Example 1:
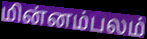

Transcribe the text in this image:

மின்னம்பலம்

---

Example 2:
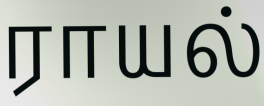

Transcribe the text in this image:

ராயல்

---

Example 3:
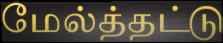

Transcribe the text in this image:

மேல்த்தட்டு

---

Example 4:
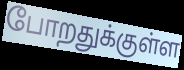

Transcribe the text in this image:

போறதுக்குள்ள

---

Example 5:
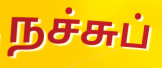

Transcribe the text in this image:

நச்சுப்